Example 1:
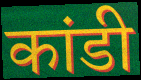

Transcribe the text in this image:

कांडी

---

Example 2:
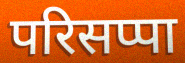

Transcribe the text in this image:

परिसप्पा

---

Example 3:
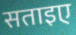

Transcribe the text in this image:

सताइए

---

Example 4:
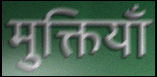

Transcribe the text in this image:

मुक्तियाँ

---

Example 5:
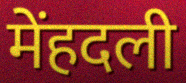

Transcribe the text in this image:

मेंहदली